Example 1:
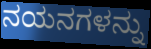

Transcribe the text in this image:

ನಯನಗಳನ್ನು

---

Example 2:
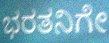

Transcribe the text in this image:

ಭರತನಿಗೇ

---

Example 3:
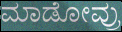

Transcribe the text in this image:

ಮಾಡೋವ್ರು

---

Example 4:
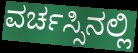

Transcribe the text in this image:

ವರ್ಚಸ್ಸಿನಲ್ಲಿ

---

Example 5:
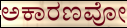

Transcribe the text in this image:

ಅಕಾರಣವೋ